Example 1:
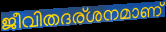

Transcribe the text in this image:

ജീവിതദര്ശനമാണ്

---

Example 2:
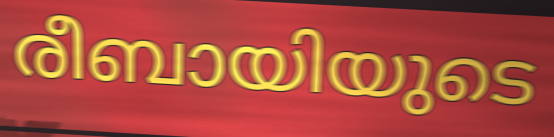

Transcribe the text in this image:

രീബായിയുടെ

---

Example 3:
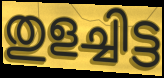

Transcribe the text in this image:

തുളച്ചിട്ട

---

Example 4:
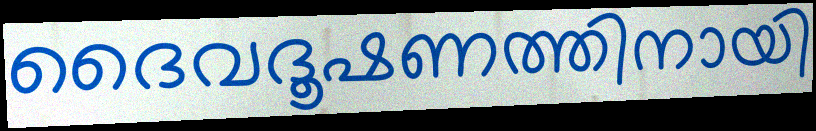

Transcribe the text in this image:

ദൈവദൂഷണത്തിനായി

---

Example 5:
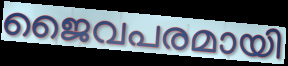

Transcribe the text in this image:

ജൈവപരമായി